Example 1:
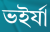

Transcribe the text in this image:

ভইর্যা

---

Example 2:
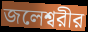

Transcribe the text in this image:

জলেশ্বরীর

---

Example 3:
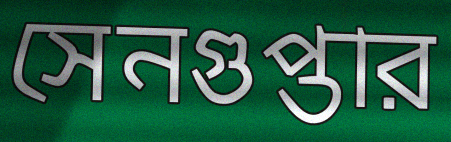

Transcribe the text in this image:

সেনগুপ্তার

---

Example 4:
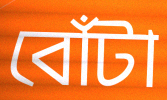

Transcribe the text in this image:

বোঁটা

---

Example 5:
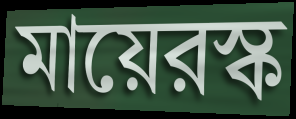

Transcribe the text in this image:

মায়েরস্ক